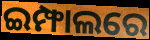
ଇମ୍ଫାଲରେ